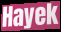
Hayek